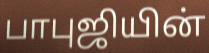
பாபுஜியின்